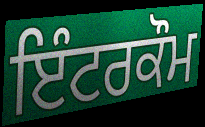
ਇੰਟਰਕੌਮ